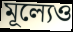
মূল্যেও